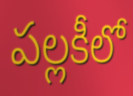
పల్లకీలో